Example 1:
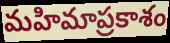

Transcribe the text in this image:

మహిమాప్రకాశం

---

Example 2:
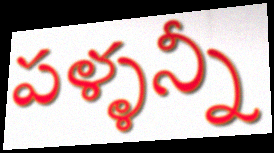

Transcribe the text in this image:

పళ్ళన్నీ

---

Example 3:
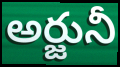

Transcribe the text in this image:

అర్జునీ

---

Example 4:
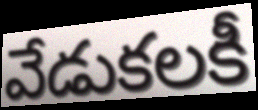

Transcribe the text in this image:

వేడుకలకీ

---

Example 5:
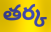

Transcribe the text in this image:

తర్క